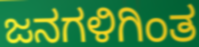
ಜನಗಳಿಗಿಂತ